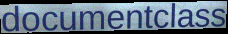
documentclass